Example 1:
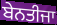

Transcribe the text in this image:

ਬੇਨਤੀਜਾ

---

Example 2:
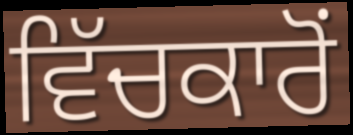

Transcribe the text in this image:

ਵਿੱਚਕਾਰੋਂ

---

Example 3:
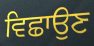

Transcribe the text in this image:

ਵਿਛਾਉਣ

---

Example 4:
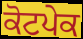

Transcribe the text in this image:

ਕੋਟਪੇਕ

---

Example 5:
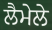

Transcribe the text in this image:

ਲੈਮੇਲੇ